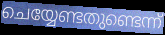
ചെയ്യേണ്ടതുണ്ടെന്ന്